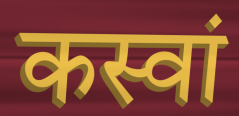
कस्‍वां